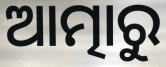
ଆତ୍ମାରୁ